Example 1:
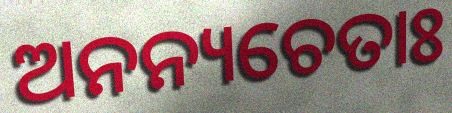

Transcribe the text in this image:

ଅନନ୍ୟଚେତାଃ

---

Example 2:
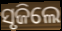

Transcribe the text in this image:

ସୃଜିଲେ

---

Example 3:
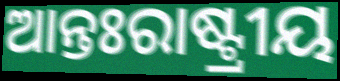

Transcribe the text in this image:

ଆନ୍ତଃରାଷ୍ଟ୍ରୀୟ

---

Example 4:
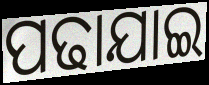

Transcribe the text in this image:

ପଢାଯାଇ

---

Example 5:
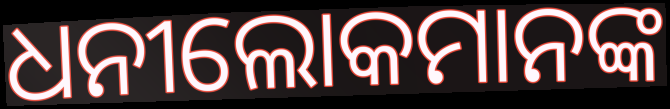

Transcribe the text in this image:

ଧନୀଲୋକମାନଙ୍କ